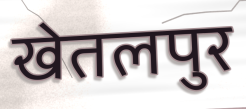
खेतलपुर